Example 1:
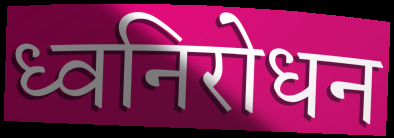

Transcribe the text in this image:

ध्वनिरोधन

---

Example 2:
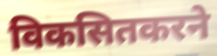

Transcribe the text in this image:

विकसितकरने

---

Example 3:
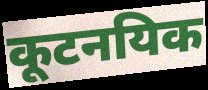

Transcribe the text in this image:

कूटनयिक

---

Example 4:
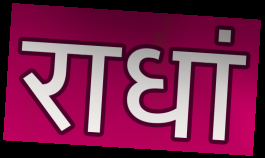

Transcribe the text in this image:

राधां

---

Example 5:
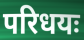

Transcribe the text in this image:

परिधयः